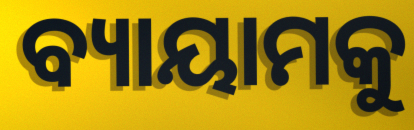
ବ୍ୟାୟାମକୁ